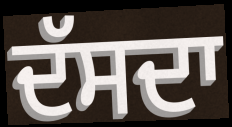
ਦੱਸਦਾ